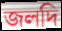
জলদি